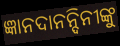
ଜ୍ଞାନଦାନନ୍ଦିନୀଙ୍କୁ